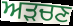
ਅੜਚਣ